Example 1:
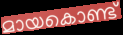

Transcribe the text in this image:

മായകൊണ്ട്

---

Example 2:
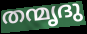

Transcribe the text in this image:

തന്മൃദു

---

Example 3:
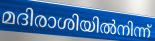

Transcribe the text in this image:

മദിരാശിയിൽനിന്ന്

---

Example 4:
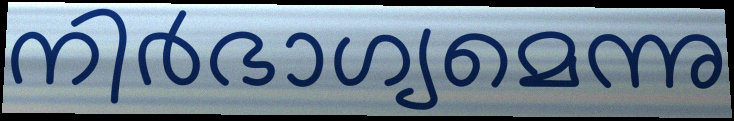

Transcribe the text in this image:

നിർഭാഗ്യമെന്നു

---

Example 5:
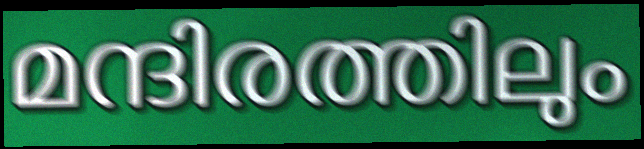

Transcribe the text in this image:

മന്ദിരത്തിലും